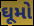
ઘૂમો